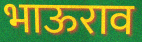
भाऊराव